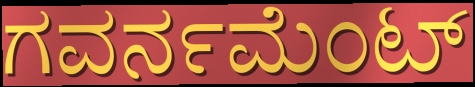
ಗವರ್ನಮೆಂಟ್